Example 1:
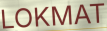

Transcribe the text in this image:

LOKMAT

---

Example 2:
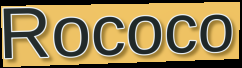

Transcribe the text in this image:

Rococo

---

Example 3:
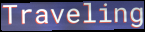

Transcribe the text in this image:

Traveling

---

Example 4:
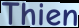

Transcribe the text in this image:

Thien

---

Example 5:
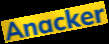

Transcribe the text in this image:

Anacker